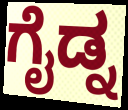
ಗೈಡ್ನ